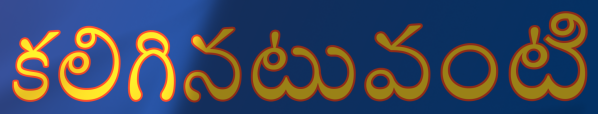
కలిగినటువంటి